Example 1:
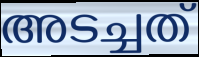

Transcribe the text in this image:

അടച്ചത്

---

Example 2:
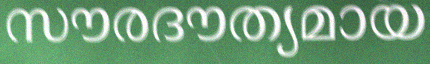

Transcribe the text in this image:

സൗരദൗത്യമായ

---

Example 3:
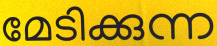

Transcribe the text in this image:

മേടിക്കുന്ന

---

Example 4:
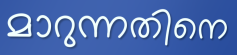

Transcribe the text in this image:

മാറുന്നതിനെ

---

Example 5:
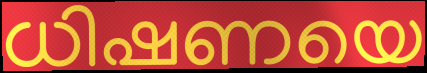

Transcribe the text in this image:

ധിഷണയെ